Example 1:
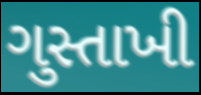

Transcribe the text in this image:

ગુસ્તાખી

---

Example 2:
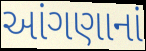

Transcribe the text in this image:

આંગણાનાં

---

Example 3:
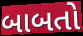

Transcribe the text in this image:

બાબતો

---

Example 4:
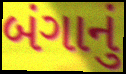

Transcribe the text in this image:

બંગાનું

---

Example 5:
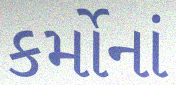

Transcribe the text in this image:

કર્મોનાં